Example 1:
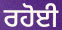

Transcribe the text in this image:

ਰਹੋਈ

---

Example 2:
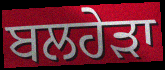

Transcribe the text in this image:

ਬਲਹੇੜਾ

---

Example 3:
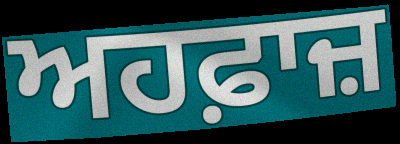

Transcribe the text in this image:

ਅਹਫ਼ਾਜ਼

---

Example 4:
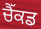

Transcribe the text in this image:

ਚੈੱਕਡ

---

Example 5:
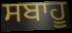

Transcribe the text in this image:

ਸਬਾਹੂ